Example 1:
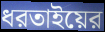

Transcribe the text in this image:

ধরতাইয়ের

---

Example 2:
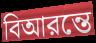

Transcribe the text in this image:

বিআরন্তে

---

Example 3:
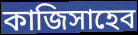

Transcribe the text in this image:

কাজিসাহেব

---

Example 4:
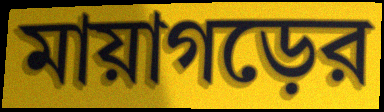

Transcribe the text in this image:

মায়াগড়ের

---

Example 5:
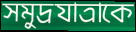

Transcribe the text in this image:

সমুদ্রযাত্রাকে